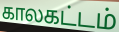
காலகட்டம்